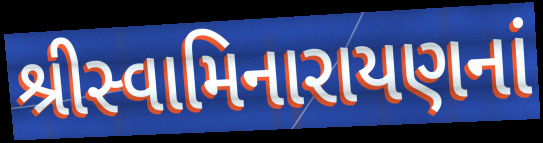
શ્રીસ્વામિનારાયણનાં